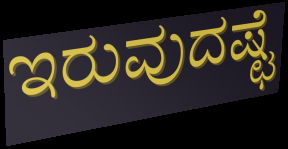
ಇರುವುದಷ್ಟೆ